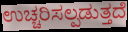
ಉಚ್ಚರಿಸಲ್ಪಡುತ್ತದೆ